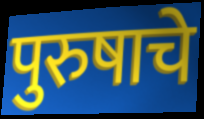
पुरुषाचे